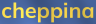
cheppina